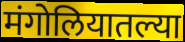
मंगोलियातल्या